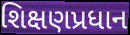
શિક્ષણપ્રધાન